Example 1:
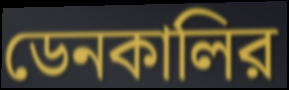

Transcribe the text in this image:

ডেনকালির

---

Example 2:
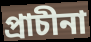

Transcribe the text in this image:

প্রাচীনা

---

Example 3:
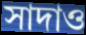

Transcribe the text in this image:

সাদাও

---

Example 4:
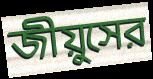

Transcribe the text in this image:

জীয়ুসের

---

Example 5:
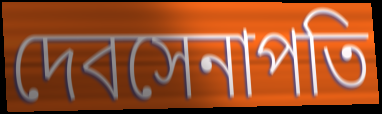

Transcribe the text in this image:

দেবসেনাপতি